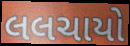
લલચાયો